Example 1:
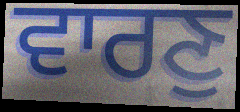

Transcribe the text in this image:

ਵਾਰਣੁ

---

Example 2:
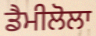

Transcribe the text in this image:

ਡੈਮੀਲੋਲਾ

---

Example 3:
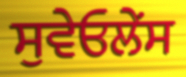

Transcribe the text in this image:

ਸੁਵੇਓਲੇਂਸ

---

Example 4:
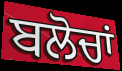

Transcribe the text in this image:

ਬਲੋਚਾਂ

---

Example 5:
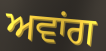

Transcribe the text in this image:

ਅਵਾਂਗ